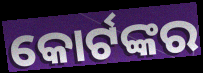
କୋର୍ଟଙ୍କର